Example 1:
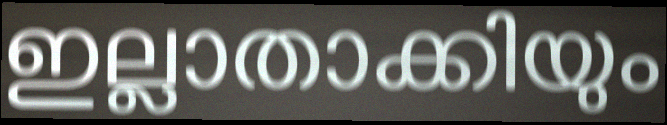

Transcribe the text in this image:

ഇല്ലാതാക്കിയും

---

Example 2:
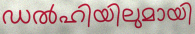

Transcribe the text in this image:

ഡൽഹിയിലുമായി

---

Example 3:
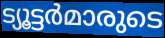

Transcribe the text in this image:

ട്യൂട്ടർമാരുടെ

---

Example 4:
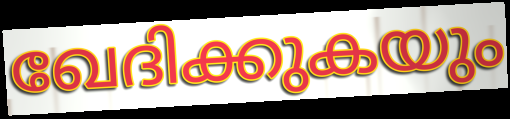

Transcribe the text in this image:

ഖേദിക്കുകയും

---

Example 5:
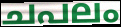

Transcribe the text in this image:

ചപലം